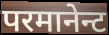
परमानेन्ट